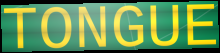
TONGUE